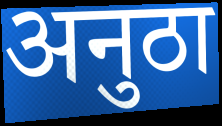
अनुठा